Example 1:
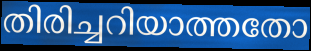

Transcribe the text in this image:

തിരിച്ചറിയാത്തതോ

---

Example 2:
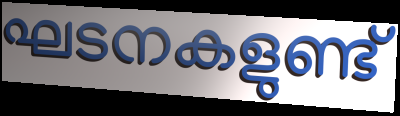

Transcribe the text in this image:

ഘടനകളുണ്ട്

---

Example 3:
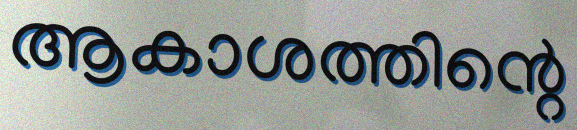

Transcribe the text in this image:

ആകാശത്തിന്റെ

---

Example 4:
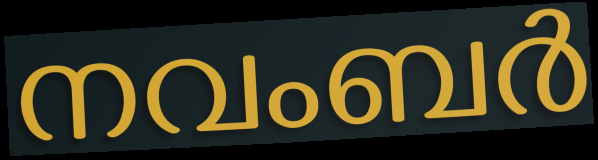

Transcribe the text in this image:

നവംബർ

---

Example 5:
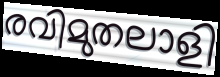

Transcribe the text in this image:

രവിമുതലാളി